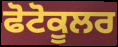
ਫੋਟੋਕੂਲਰ